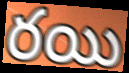
రయి